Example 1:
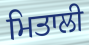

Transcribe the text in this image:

ਮਿਤਾਲੀ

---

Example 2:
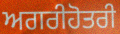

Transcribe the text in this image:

ਅਗਰੀਹੋਤਰੀ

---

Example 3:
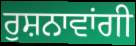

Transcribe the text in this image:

ਰੁਸ਼ਨਾਵਾਂਗੀ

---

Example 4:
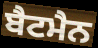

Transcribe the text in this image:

ਬੈਟਮੈਨ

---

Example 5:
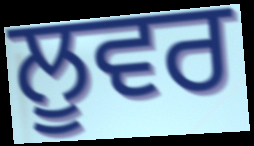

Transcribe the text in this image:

ਲੂਵਰ